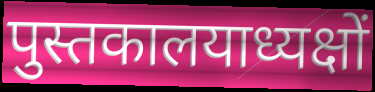
पुस्तकालयाध्यक्षों